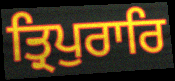
ਤ੍ਰਿਪੁਰਾਰਿ